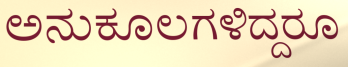
ಅನುಕೂಲಗಳಿದ್ದರೂ